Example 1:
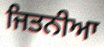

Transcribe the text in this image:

ਜਿਤਨੀਆ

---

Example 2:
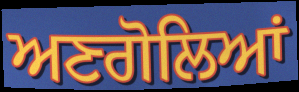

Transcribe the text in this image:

ਅਣਗੋਲਿਆਂ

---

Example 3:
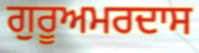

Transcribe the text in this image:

ਗੁਰੂਅਮਰਦਾਸ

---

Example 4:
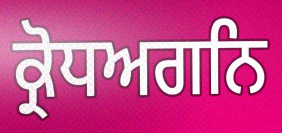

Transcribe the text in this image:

ਕ੍ਰੋਧਅਗਨਿ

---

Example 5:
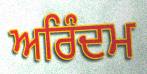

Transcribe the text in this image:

ਅਰਿੰਦਮ